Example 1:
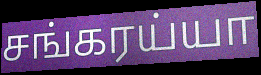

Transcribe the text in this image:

சங்கரய்யா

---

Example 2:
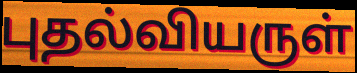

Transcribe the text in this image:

புதல்வியருள்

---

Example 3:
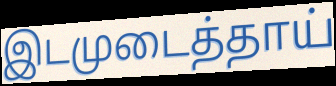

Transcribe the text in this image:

இடமுடைத்தாய்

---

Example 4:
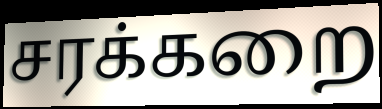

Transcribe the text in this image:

சரக்கறை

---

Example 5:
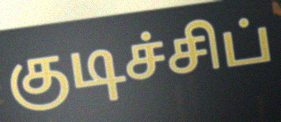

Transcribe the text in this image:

குடிச்சிப்